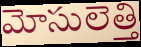
మోసులెత్తి